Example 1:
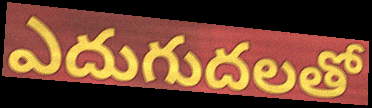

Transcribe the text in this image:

ఎదుగుదలతో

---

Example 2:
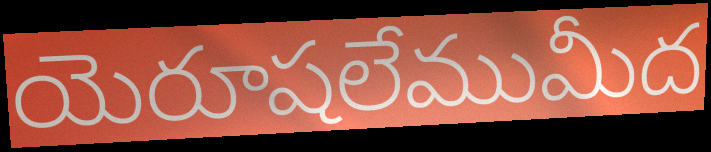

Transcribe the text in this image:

యెరూషలేముమీద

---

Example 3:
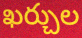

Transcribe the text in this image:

ఖర్చుల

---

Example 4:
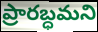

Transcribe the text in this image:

ప్రారబ్ధమని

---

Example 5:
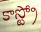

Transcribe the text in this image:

కాస్ట్రో